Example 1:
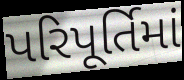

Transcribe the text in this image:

પરિપૂર્તિમાં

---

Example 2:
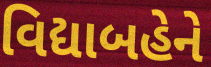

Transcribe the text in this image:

વિદ્યાબહેને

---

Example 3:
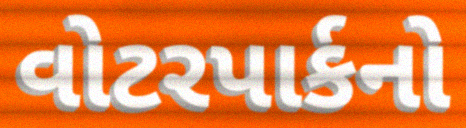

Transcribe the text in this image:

વોટરપાર્કનો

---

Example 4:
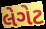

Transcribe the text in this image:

લેગેટ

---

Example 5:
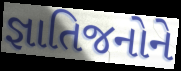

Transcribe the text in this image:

જ્ઞાતિજનોને